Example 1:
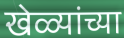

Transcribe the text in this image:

खेळ्यांच्या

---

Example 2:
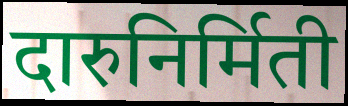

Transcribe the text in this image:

दारुनिर्मिती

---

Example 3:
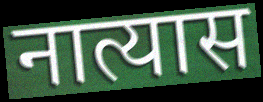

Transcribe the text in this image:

नात्यास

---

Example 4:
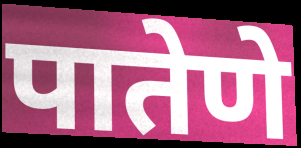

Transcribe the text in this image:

पातेणे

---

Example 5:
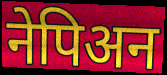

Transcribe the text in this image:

नेपिअन